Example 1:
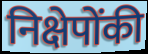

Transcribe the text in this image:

निक्षेपोंकी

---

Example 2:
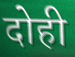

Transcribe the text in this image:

दोही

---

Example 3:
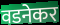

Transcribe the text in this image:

वडनेकर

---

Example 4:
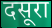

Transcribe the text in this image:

दसूरा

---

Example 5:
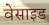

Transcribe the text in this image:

वेसाइड